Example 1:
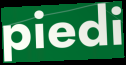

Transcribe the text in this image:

piedi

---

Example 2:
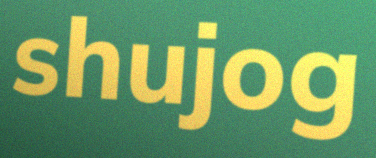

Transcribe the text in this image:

shujog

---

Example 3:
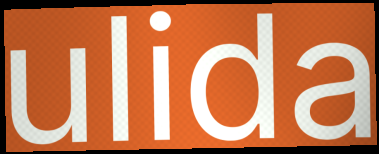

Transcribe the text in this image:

ulida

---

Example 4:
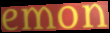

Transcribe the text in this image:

emon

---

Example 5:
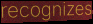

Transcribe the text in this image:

recognizes